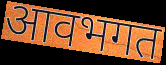
आवभगत